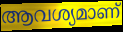
ആവശ്യമാണ്